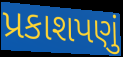
પ્રકાશપણું